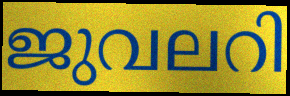
ജുവലറി